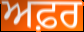
ਅਫ਼ਰ